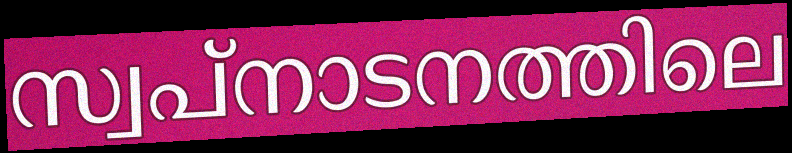
സ്വപ്നാടനത്തിലെ